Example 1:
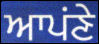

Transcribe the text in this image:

ਆਪਂਣੇ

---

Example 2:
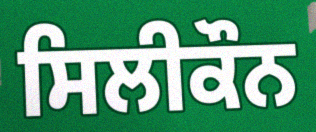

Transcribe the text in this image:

ਸਿਲੀਕੌਨ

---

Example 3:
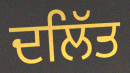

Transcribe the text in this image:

ਦਲਿੱਤ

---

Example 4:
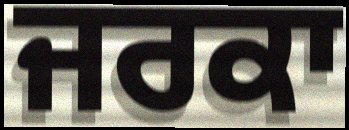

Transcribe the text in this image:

ਜਰਕਾ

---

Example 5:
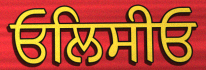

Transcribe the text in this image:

ਓਲਿਸੀਓ